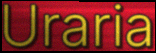
Uraria